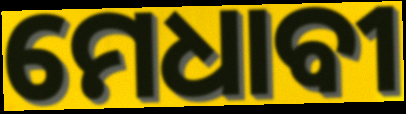
ମେଧାବୀ